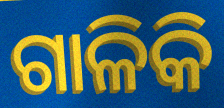
ଗାଳିକି